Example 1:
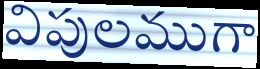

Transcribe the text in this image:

విపులముగా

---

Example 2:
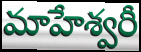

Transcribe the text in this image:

మాహేశ్వరీ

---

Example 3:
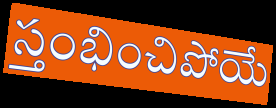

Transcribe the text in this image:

స్తంభించిపోయే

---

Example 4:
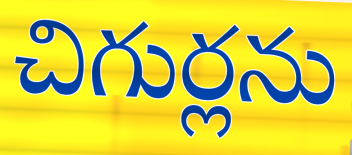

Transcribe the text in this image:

చిగుర్లను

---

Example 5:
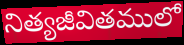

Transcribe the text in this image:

నిత్యజీవితములో